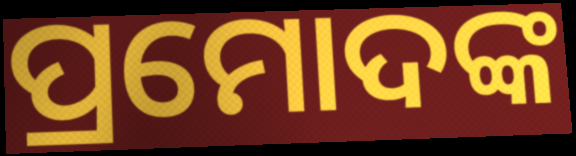
ପ୍ରମୋଦଙ୍କ